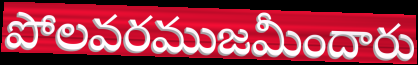
పోలవరముజమీందారు